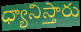
ధ్యానిస్తారు